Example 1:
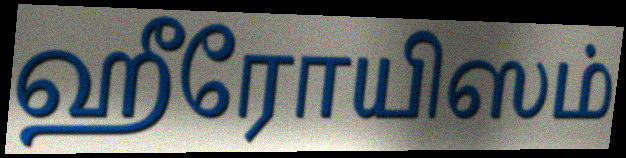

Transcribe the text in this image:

ஹீரோயிஸம்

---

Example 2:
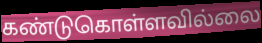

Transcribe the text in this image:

கண்டுகொள்ளவில்லை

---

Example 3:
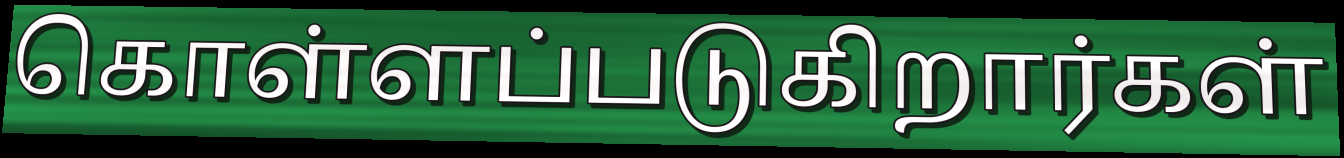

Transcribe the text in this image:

கொள்ளப்படுகிறார்கள்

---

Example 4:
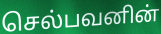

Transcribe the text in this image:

செல்பவனின்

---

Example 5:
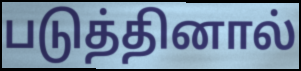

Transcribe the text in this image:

படுத்தினால்